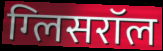
ग्लिसरॉल